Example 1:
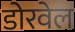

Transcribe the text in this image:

डोरवेल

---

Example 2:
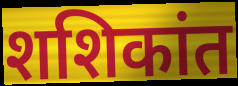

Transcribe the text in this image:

शशिकांत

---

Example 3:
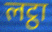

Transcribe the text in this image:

लट्ठा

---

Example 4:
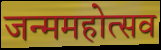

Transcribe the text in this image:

जन्ममहोत्सव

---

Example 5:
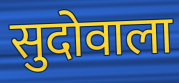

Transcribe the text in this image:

सुदोवाला